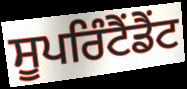
ਸੂਪਰਿੰਟੈਂਡੈਂਟ